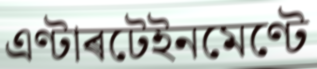
এণ্টাৰটেইনমেণ্টে